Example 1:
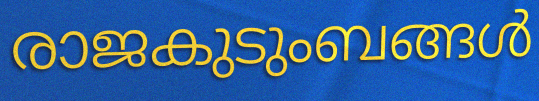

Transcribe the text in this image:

രാജകുടുംബങ്ങൾ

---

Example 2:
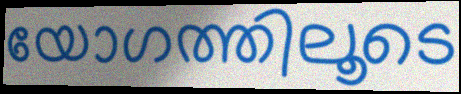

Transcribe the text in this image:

യോഗത്തിലൂടെ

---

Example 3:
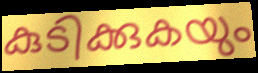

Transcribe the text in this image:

കുടിക്കുകയും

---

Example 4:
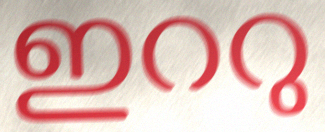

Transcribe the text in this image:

ഇററു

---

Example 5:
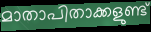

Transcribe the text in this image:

മാതാപിതാക്കളുണ്ട്